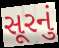
સૂરનું